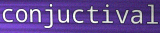
conjuctival